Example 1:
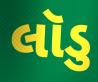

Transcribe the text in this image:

લૉડુ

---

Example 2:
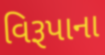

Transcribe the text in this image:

વિરૂપાના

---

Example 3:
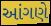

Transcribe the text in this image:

આંગણે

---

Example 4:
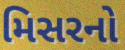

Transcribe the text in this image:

મિસરનો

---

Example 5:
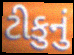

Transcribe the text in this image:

ટીકુનું